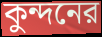
কুন্দনের